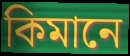
কিমানে